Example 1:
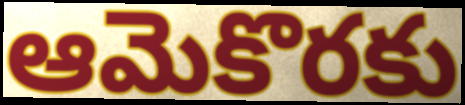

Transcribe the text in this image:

ఆమెకొరకు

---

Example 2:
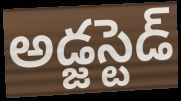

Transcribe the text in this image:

అడ్జస్టెడ్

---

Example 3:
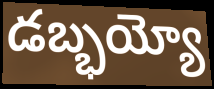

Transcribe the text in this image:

డబ్భయ్యో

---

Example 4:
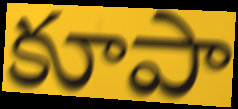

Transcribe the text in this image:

కూపా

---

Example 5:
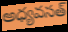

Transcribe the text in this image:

అధ్యవసత్